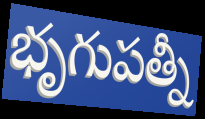
భృగుపత్నీ